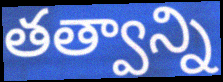
తత్వాన్ని